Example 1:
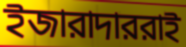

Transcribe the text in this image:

ইজারাদাররাই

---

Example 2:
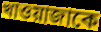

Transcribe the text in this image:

খাওয়াজাকে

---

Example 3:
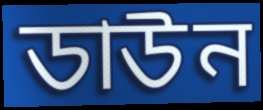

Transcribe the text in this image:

ডাউন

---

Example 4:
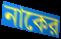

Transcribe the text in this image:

নাকের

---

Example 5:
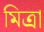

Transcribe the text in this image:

মিত্রা